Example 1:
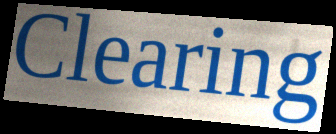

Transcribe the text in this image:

Clearing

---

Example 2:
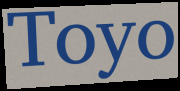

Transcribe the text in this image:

Toyo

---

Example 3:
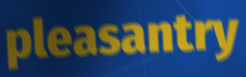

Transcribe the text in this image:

pleasantry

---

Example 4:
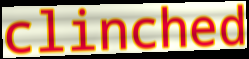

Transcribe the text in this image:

clinched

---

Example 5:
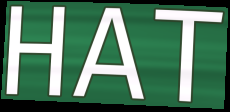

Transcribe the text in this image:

HAT